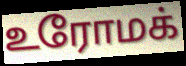
உரோமக்